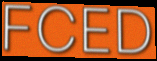
FCED